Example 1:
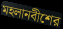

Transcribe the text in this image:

মহলানবীশের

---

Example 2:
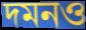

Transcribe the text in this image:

দমনও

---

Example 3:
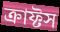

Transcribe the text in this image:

ক্রাফ্টস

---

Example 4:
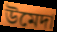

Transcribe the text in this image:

উমেদা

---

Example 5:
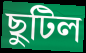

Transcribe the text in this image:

ছুটিল